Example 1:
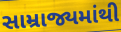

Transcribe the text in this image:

સામ્રાજ્યમાંથી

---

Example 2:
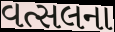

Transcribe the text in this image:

વત્સલના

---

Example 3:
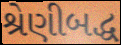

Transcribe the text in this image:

શ્રેણીબદ્ધ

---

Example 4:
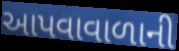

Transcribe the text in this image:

આપવાવાળાની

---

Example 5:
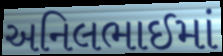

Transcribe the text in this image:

અનિલભાઈમાં